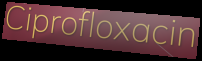
Ciprofloxacin